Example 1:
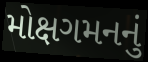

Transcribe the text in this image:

મોક્ષગમનનું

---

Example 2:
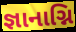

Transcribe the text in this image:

જ્ઞાનાગ્નિ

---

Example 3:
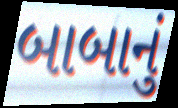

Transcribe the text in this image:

બાબાનું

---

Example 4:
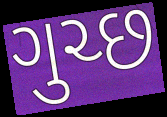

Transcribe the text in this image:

ગુચ્છ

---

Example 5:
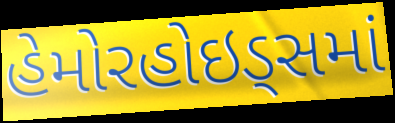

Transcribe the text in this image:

હેમોરહોઇડ્સમાં